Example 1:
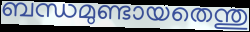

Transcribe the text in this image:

ബന്ധമുണ്ടായതെന്തു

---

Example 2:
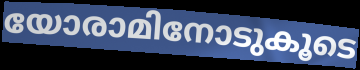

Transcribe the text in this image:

യോരാമിനോടുകൂടെ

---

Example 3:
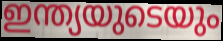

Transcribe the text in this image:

ഇന്ത്യയുടെയും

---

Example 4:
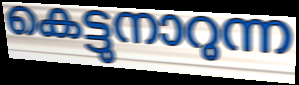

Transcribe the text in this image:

കെട്ടുനാറുന്ന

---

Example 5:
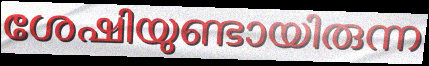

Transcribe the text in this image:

ശേഷിയുണ്ടായിരുന്ന